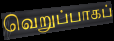
வெறுப்பாகப்